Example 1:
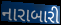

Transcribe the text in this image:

નારાબારી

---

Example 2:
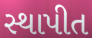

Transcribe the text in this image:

સ્થાપીત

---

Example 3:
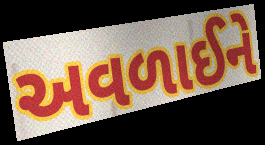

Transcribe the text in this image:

અવળાઈને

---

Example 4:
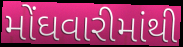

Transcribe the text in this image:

મોંઘવારીમાંથી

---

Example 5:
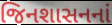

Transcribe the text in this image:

જિનશાસનનાં